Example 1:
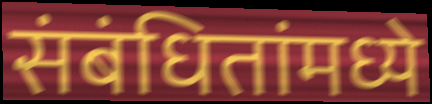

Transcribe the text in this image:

संबंधितांमध्ये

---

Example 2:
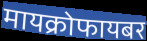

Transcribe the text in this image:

मायक्रोफायबर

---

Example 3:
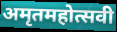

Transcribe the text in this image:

अमृतमहोत्सवी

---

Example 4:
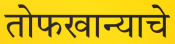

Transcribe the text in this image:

तोफखान्याचे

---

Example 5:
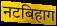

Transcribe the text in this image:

नटबिहाग